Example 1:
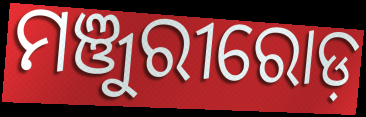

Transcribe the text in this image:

ମଞ୍ଜୁରୀରୋଡ଼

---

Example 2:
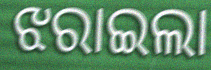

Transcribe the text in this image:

ଝରାଇଲା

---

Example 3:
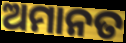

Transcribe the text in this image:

ଅମାନତ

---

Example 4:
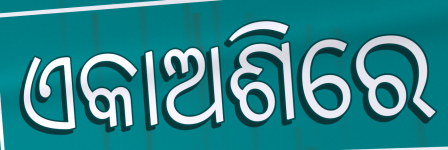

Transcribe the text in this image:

ଏକାଅଶିରେ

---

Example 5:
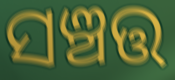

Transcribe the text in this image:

ସଞ୍ଚତ୍ତ